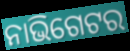
ନାଭିଗେଟର